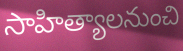
సాహిత్యాలనుంచి